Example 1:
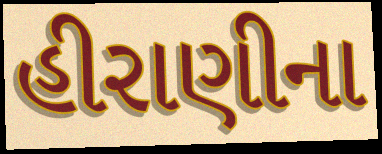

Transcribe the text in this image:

હીરાણીના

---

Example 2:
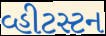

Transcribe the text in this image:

વ્હીટસ્ટન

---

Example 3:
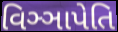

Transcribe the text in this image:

વિઞ્ઞાપેતિ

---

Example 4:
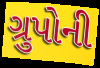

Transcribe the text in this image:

ગ્રુપોની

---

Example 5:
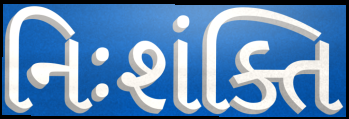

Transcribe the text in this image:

નિઃશંક્તિ